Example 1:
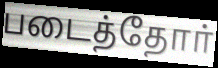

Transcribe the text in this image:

படைத்தோர்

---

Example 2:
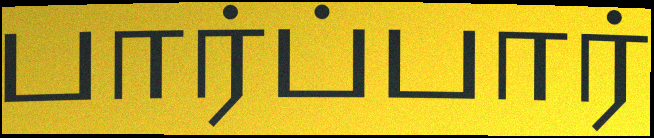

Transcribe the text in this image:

பார்ப்பார்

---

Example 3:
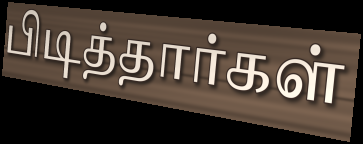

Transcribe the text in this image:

பிடித்தார்கள்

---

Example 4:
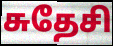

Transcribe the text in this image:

சுதேசி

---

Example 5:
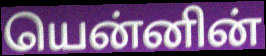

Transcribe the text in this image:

யென்னின்